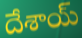
దేశాయ్